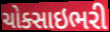
ચોક્સાઇભરી